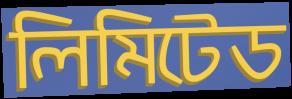
লিমিটেড